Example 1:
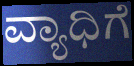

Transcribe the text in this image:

ವ್ಯಾಧಿಗೆ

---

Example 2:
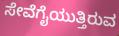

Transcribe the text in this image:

ಸೇವೆಗೈಯುತ್ತಿರುವ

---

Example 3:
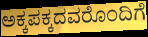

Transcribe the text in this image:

ಅಕ್ಕಪಕ್ಕದವರೊಂದಿಗೆ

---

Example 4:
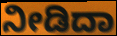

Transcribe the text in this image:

ನೀಡಿದಾ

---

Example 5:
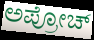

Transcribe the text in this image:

ಅಪ್ರೋಚ್